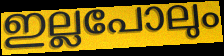
ഇല്ലപോലും